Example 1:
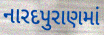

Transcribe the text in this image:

નારદપુરાણમાં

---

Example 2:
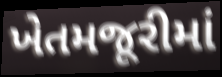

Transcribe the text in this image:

ખેતમજૂરીમાં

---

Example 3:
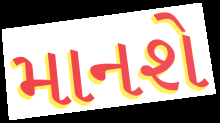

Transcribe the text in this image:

માનશે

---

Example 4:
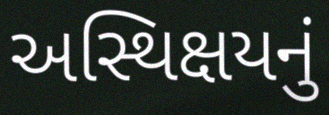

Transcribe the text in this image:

અસ્થિક્ષયનું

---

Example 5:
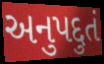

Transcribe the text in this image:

અનુપદ્દુતં